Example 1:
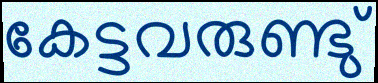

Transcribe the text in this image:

കേട്ടവരുണ്ടു്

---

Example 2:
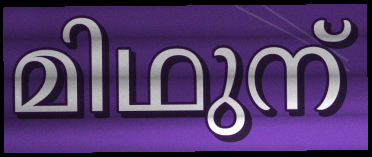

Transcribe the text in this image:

മിഥുന്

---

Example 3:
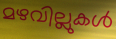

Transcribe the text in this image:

മഴവില്ലുകൾ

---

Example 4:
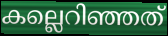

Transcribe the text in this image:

കല്ലെറിഞ്ഞത്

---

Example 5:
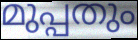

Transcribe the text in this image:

മുപ്പതും